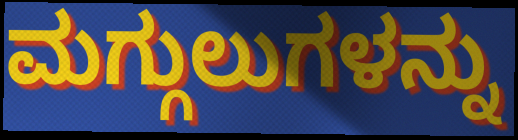
ಮಗ್ಗುಲುಗಳನ್ನು